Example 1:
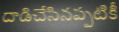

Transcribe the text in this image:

దాడిచేసినప్పటికీ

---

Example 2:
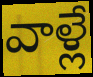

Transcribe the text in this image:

వాళ్లే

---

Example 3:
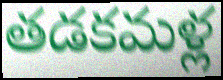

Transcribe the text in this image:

తడకమళ్ల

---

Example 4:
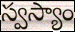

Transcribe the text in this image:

స్వస్యాం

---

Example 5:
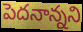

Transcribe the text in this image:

పెదనాన్నని